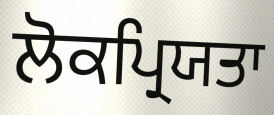
ਲੋਕਪ੍ਰਿਯਤਾ